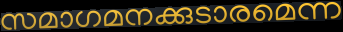
സമാഗമനക്കുടാരമെന്ന